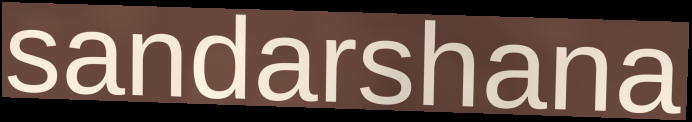
sandarshana